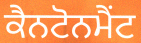
ਕੈਨਟੋਨਮੈਂਟ